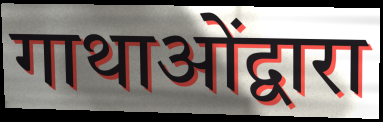
गाथाओंद्वारा